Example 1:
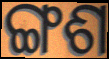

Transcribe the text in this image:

ଙ୍ଗଶ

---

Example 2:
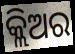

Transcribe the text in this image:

କ୍ଲିଅର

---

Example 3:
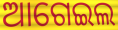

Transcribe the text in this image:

ଆଗେଇଲ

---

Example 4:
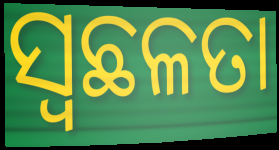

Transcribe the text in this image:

ସ୍ୱଛଳତା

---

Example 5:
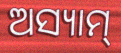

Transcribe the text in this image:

ଅସ୍ୟାମ୍